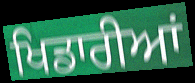
ਖਿਡਾਰੀਆਂ